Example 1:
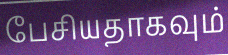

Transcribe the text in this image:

பேசியதாகவும்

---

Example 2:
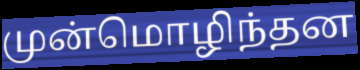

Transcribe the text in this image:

முன்மொழிந்தன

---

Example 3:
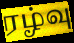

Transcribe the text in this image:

ரழ்வு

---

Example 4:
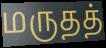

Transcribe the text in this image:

மருதத்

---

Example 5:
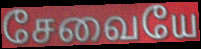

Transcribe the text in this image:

சேவையே